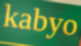
kabyo